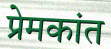
प्रेमकांत